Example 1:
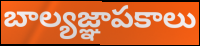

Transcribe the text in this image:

బాల్యజ్ఞాపకాలు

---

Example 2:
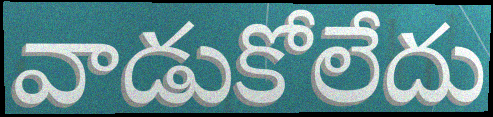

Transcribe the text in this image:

వాడుకోలేదు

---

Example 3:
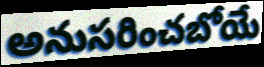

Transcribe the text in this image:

అనుసరించబోయే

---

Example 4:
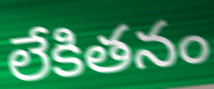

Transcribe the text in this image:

లేకితనం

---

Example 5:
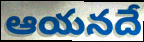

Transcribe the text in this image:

ఆయనదే